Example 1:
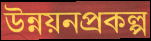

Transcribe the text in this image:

উন্নয়নপ্রকল্প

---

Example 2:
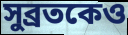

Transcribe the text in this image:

সুব্রতকেও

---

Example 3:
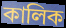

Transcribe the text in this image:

কালিক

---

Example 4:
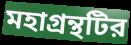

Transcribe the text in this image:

মহাগ্রন্থটির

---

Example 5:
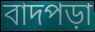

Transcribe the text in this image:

বাদপড়া